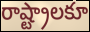
రాష్ట్రాలకూ